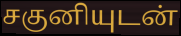
சகுனியுடன்